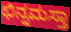
ಛಿನ್ನಮಸ್ತಾ